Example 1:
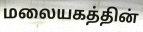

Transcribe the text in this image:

மலையகத்தின்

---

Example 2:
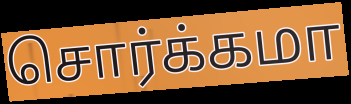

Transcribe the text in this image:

சொர்க்கமா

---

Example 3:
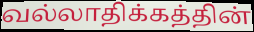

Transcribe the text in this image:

வல்லாதிக்கத்தின்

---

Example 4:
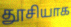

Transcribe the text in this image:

தூசியாக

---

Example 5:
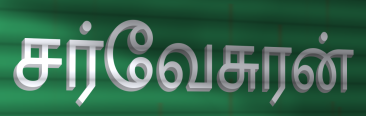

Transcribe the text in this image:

சர்வேசுரன்